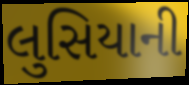
લુસિયાની